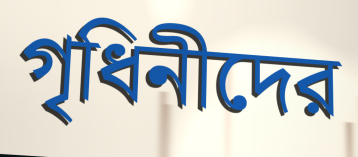
গৃধিনীদের